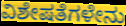
ವಿಶೇಷತೆಗಳೇನು